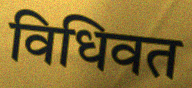
विधिवत